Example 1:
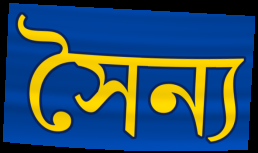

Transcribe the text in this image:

সৈন্য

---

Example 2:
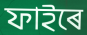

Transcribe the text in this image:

ফাইৰে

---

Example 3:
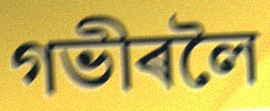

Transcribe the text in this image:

গভীৰলৈ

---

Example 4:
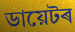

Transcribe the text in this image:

ডায়েটৰ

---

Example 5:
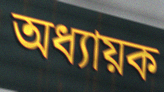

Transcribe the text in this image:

অধ্যায়ক